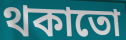
থকাতো